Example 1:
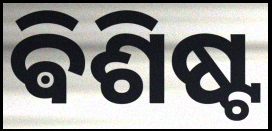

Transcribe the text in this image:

ଵିଶିଷ୍ଟ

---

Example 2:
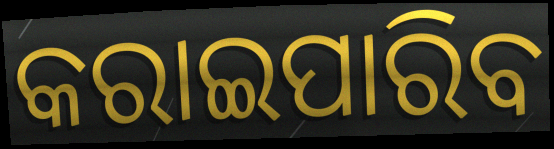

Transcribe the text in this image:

କରାଇପାରିବ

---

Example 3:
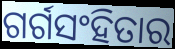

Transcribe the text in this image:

ଗର୍ଗସଂହିତାର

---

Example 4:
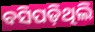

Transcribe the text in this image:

ବସିପଡ଼ିଥିଲି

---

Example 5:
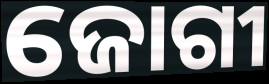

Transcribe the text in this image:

ଜୋଗୀ